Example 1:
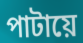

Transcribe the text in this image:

পাটায়ে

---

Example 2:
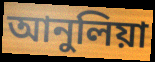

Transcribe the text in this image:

আনুলিয়া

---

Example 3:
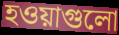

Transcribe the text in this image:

হওয়াগুলো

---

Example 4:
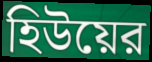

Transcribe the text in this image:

হিউয়ের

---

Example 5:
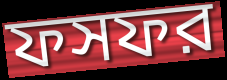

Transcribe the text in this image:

ফসফর